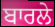
ਬਾਰਲੇ